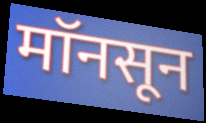
मॉनसून